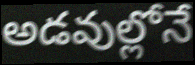
అడవుల్లోనే